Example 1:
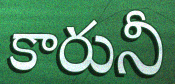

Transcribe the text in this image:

కారునీ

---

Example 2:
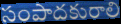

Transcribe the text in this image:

సంపాదకురాలి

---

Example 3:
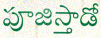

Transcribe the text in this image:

పూజిస్తాడో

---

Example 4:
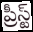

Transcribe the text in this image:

ప్రీస్ట్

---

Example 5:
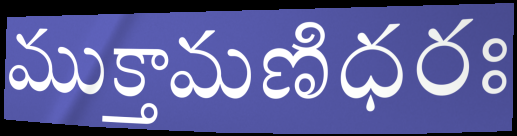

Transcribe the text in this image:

ముక్తామణిధరః